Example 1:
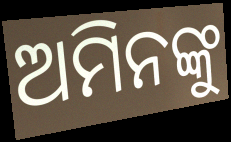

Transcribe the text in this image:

ଅମିନଙ୍କୁ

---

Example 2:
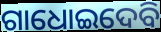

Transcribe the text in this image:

ଗାଧୋଇଦେବି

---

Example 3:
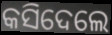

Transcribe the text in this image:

କସିଦେଲେ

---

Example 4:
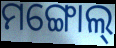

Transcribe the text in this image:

ମଙ୍ଗୋଲ୍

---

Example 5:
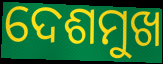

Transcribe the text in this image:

ଦେଶମୁଖ